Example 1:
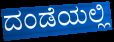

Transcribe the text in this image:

ದಂಡೆಯಲ್ಲಿ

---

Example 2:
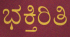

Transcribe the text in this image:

ಭಕ್ತಿರಿತಿ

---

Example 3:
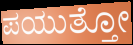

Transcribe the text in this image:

ಪಯುತ್ತೋ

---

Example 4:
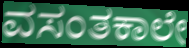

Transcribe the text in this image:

ವಸಂತಕಾಲೇ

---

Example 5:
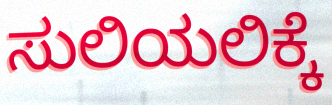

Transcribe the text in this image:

ಸುಲಿಯಲಿಕ್ಕೆ